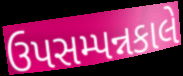
ઉપસમ્પન્નકાલે